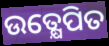
ଉତ୍କ୍ଷେପିତ